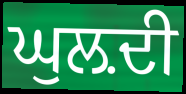
ਘੁਲ਼ਦੀ